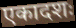
एकादशः